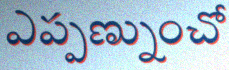
ఎప్పణ్నుంచో